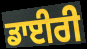
ਡਾਈਰੀ